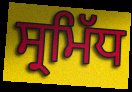
ਸ੍ਰਮਿੱਧ